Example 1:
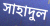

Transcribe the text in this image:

সাহাদুল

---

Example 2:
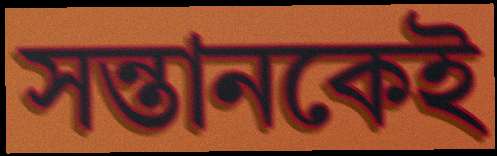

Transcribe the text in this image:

সন্তানকেই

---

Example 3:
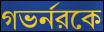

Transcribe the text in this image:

গভর্নরকে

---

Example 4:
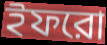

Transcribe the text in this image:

ইফরো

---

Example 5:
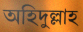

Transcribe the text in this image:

অহিদুল্লাহ